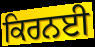
ਕਿਰਨਈ